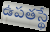
ఉపతస్థే